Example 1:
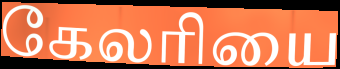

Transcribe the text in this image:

கேலரியை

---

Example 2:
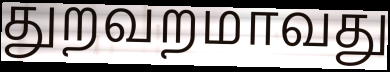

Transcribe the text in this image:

துறவறமாவது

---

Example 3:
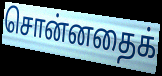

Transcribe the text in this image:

சொன்னதைக்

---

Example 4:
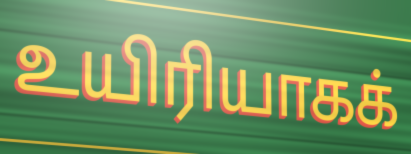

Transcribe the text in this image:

உயிரியாகக்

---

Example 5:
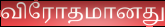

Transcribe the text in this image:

விரோதமானது